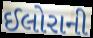
ઈલોરાની